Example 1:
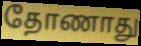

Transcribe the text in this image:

தோணாது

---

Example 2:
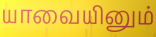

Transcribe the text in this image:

யாவையினும்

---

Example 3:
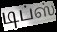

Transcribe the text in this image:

டிப்ஸ்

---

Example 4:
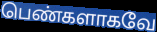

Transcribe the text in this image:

பெண்களாகவே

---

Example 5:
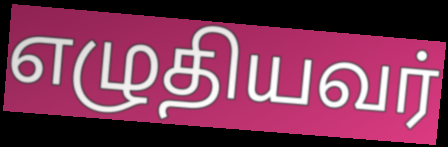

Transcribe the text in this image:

எழுதியவர்